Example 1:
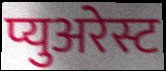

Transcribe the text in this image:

प्युअरेस्ट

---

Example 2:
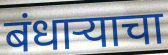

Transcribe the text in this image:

बंधार्‍याचा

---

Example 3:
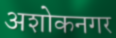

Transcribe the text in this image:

अशोकनगर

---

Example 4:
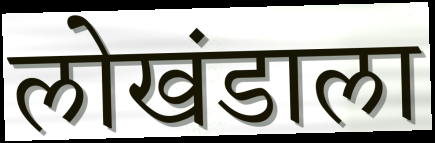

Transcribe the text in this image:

लोखंडाला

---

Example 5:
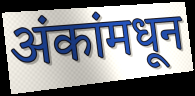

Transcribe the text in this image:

अंकांमधून